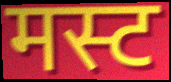
मस्ट